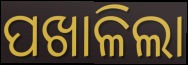
ପଖାଳିଲା